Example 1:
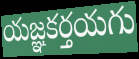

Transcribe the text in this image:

యజ్ఞకర్తయగు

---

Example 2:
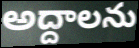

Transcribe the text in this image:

అద్దాలను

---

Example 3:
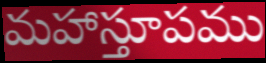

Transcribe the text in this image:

మహాస్తూపము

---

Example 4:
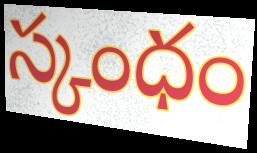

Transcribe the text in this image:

స్కంధం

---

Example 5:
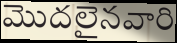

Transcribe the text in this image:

మొదలైనవారి